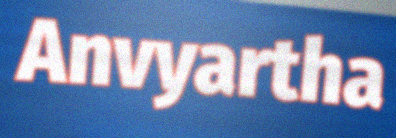
Anvyartha